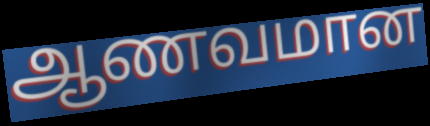
ஆணவமான